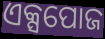
ଏକ୍ସପୋଜ